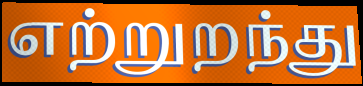
எற்றுறந்து